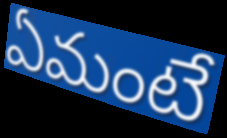
ఏమంటే